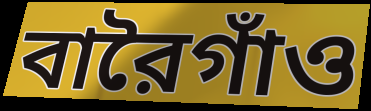
বারৈগাঁও